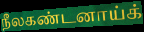
நீலகண்டனாய்க்